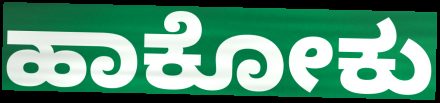
ಹಾಕೋಕು